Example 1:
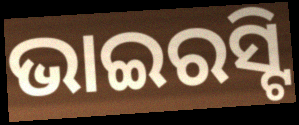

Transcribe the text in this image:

ଭାଇରସ୍ଟି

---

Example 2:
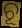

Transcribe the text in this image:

ଚୂ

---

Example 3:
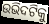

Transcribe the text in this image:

ଉଭିଦଟିକୁ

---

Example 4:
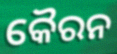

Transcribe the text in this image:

କୈରନ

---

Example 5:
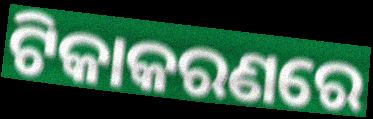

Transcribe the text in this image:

ଟିକାକରଣରେ